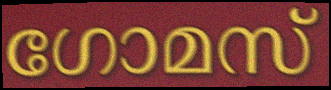
ഗോമസ്